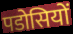
पडोसियों